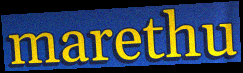
marethu